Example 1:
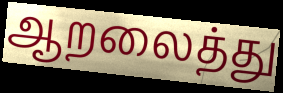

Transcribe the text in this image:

ஆறலைத்து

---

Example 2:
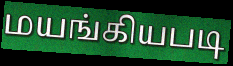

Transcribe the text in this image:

மயங்கியபடி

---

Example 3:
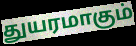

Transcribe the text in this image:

துயரமாகும்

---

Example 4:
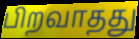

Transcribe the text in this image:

பிறவாதது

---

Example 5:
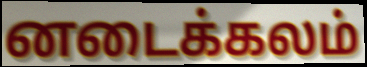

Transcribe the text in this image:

னடைக்கலம்